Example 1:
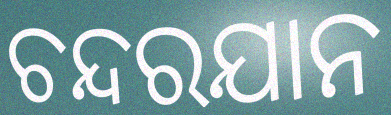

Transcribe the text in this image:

ଚନ୍ଦରଯାନ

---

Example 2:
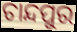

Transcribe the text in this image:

ଚାନ୍ଦପୁର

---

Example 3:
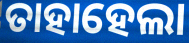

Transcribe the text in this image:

ତାହାହେଲା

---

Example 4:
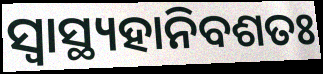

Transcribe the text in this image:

ସ୍ୱାସ୍ଥ୍ୟହାନିବଶତଃ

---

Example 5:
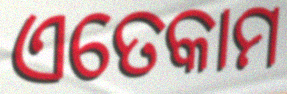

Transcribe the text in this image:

ଏତେକାମ